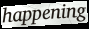
happening